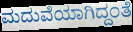
ಮದುವೆಯಾಗಿದ್ದಂತೆ